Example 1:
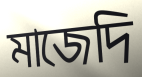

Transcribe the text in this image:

মাজেদি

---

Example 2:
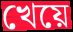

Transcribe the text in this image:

খেয়ে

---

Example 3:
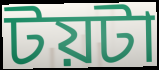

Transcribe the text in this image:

টয়টা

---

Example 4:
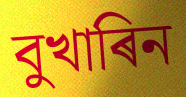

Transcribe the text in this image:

বুখাৰিন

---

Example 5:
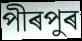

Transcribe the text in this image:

পীৰপুৰ